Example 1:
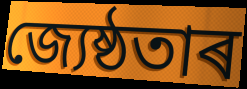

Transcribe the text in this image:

জ্যেষ্ঠতাৰ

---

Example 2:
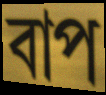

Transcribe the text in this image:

বাপ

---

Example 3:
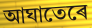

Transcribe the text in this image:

আঘাতেৰে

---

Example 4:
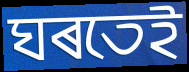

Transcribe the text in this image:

ঘৰতেই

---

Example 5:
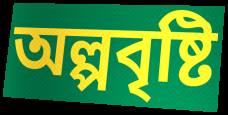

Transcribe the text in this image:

অল্পবৃষ্টি